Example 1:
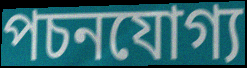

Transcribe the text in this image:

পচনযোগ্য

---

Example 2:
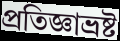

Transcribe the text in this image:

প্রতিজ্ঞাভ্রষ্ট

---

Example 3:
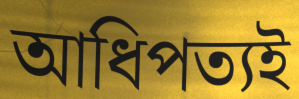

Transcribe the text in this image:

আধিপত্যই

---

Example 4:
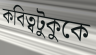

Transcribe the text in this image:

কবিত্বটুকুকে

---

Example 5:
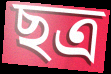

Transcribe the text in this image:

ছত্র